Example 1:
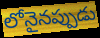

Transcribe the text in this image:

లోనైనప్పుడు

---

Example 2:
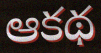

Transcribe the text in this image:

ఆకథ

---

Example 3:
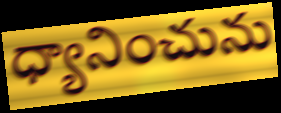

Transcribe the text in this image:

ధ్యానించును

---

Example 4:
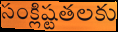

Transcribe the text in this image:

సంక్లిష్టతలకు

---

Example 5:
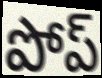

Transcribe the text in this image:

పోప్